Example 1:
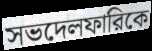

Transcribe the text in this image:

সভদেলফারিকে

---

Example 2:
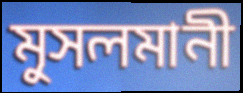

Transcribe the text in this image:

মুসলমানী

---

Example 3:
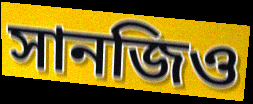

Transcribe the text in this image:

সানজিও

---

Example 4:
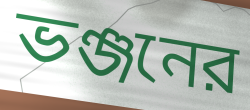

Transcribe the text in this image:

ভঞ্জনের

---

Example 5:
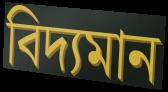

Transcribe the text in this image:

বিদ্যমান